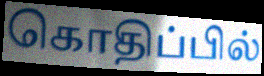
கொதிப்பில்